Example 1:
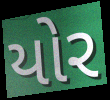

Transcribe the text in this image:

યોર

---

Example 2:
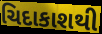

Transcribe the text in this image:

ચિદાકાશથી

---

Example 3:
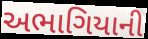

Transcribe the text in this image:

અભાગિયાની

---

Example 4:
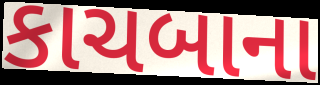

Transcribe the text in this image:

કાચબાના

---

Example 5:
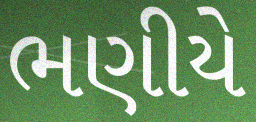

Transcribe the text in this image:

ભણીયે